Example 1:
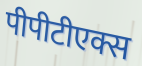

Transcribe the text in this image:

पीपीटीएक्स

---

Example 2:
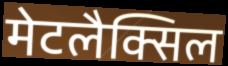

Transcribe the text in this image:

मेटलैक्सिल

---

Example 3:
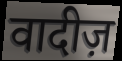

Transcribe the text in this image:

वादीज़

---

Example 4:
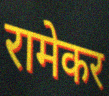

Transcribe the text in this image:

रामेकर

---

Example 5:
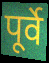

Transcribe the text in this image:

पूर्वे